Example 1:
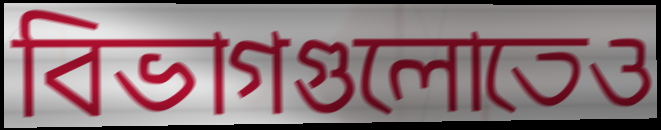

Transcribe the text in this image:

বিভাগগুলোতেও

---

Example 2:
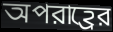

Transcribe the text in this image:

অপরাহ্রের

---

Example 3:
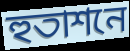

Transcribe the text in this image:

হুতাশনে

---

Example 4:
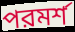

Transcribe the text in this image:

পরমর্শ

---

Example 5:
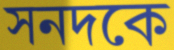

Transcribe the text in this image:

সনদকে